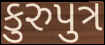
કુરુપુત્ર